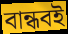
বান্ধবই